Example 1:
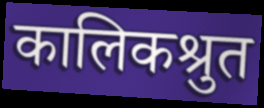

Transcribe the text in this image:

कालिकश्रुत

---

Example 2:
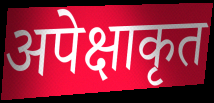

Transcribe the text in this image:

अपेक्षाकृत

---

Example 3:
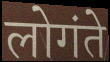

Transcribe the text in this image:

लोगंते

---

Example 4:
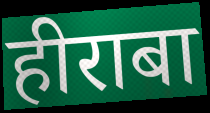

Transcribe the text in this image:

हीराबा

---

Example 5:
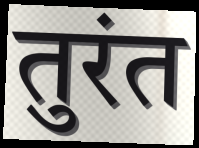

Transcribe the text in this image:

तुरंत